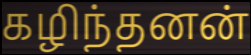
கழிந்தனன்